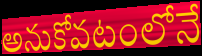
అనుకోవటంలోనే